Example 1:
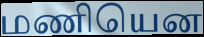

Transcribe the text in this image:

மணியென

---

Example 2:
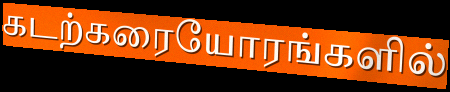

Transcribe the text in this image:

கடற்கரையோரங்களில்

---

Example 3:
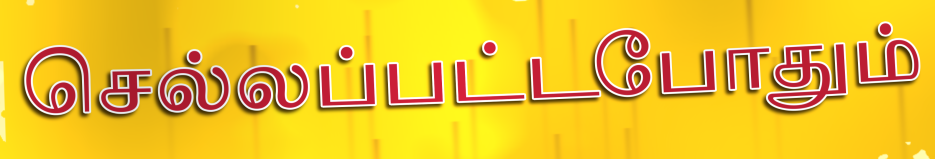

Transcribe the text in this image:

செல்லப்பட்டபோதும்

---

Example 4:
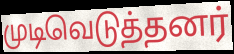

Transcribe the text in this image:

முடிவெடுத்தனர்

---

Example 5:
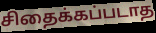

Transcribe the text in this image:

சிதைக்கப்படாத